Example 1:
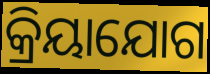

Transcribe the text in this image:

କ୍ରିୟାଯୋଗ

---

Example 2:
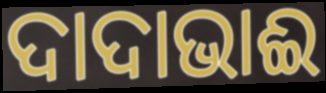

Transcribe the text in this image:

ଦାଦାଭାଈ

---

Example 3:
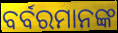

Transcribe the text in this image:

ବର୍ବରମାନଙ୍କ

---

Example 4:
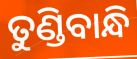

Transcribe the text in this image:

ତୁଣ୍ଡିବାନ୍ଧି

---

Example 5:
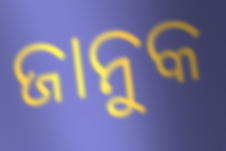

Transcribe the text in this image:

ଜାନୁକ